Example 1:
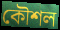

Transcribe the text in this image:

কৌশল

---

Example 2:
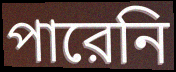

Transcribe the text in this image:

পারেনি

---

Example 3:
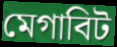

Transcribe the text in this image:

মেগাবিট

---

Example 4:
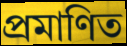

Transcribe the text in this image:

প্রমাণিত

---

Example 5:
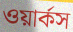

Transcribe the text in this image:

ওয়ার্কস